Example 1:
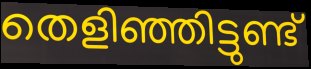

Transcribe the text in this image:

തെളിഞ്ഞിട്ടുണ്ട്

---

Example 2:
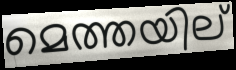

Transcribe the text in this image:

മെത്തയില്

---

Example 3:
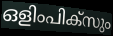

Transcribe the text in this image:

ഒളിംപിക്സും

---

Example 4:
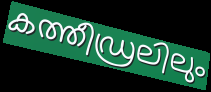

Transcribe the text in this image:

കത്തീഡ്രലിലും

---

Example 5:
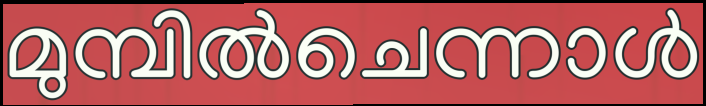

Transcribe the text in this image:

മുമ്പിൽചെന്നാൾ